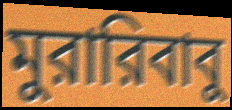
মুরারিবাবু